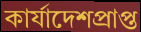
কার্যাদেশপ্রাপ্ত